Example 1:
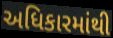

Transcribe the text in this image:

અધિકારમાંથી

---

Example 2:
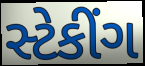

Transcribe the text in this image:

સ્ટેકીંગ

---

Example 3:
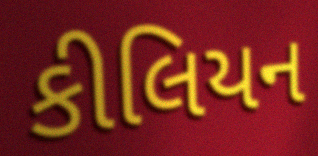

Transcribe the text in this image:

કીલિયન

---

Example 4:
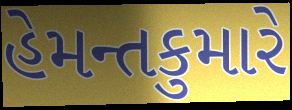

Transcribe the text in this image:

હેમન્તકુમારે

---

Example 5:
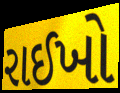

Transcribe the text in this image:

રાઈખો